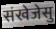
संखेजेसु